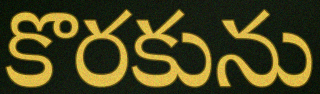
కొరకును